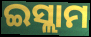
ଇସ୍ଲାମ